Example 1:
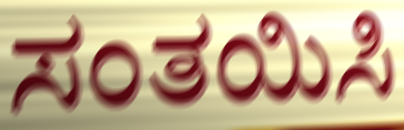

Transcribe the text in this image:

ಸಂತಯಿಸಿ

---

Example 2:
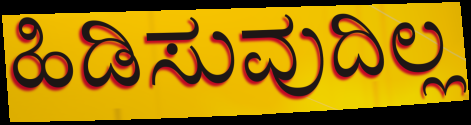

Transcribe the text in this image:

ಹಿಡಿಸುವುದಿಲ್ಲ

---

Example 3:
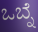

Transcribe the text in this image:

ಒಬ್ನೆ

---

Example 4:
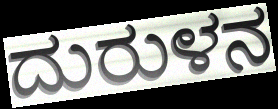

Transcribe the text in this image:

ದುರುಳನ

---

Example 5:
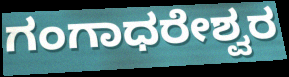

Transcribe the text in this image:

ಗಂಗಾಧರೇಶ್ವರ